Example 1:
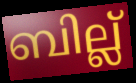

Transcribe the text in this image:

ബില്ല്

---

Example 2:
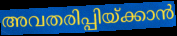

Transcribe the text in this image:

അവതരിപ്പിയ്ക്കാൻ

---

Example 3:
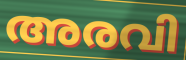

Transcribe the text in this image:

അരവി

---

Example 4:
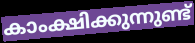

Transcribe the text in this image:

കാംക്ഷിക്കുന്നുണ്ട്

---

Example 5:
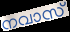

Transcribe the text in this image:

നവാസ്